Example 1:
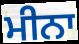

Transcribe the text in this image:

ਮੀਨਾ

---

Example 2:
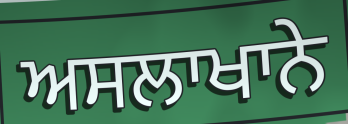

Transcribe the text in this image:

ਅਸਲਾਖਾਨੇ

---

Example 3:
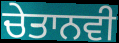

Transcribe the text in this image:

ਚੇਤਾਨਵੀ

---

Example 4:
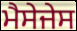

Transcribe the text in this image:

ਮੈਸੇਜੇਸ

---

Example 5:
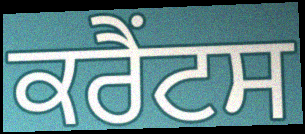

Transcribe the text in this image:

ਕਰੈਂਟਸ